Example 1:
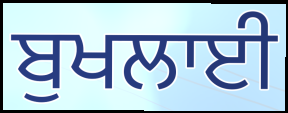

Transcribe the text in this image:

ਬੁਖਲਾਈ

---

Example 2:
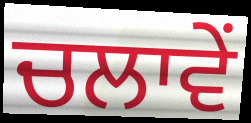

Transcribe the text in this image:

ਚਲਾਵੇਂ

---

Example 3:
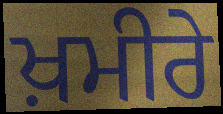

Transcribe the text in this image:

ਖ਼ਮੀਰੇ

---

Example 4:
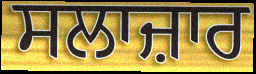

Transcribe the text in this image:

ਸਲਾਜ਼ਾਰ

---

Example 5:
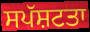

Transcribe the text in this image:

ਸਪੱਸ਼ਟਤਾ